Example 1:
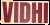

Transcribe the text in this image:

VIDHI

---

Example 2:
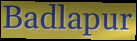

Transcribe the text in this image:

Badlapur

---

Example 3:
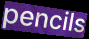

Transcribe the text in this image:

pencils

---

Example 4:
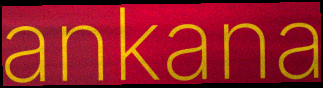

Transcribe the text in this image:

ankana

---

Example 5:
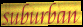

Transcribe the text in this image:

suburban